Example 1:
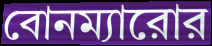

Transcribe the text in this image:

বোনম্যারোর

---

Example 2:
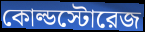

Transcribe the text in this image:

কোল্ডস্টোরেজ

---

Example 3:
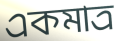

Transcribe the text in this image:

একমাত্র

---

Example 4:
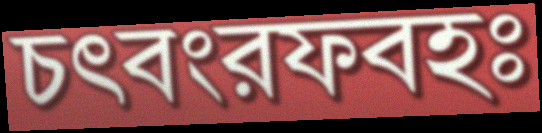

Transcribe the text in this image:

চৎবংরফবহঃ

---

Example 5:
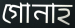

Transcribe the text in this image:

গোনাহ